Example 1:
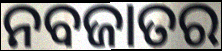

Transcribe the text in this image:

ନବଜାତର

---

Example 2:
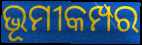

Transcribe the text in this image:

ଭୂମୀକମ୍ପର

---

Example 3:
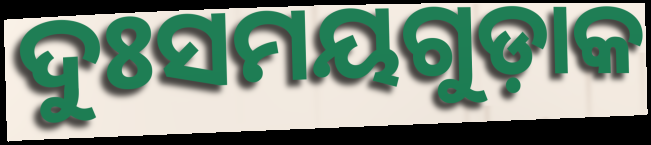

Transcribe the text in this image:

ଦୁଃସମୟଗୁଡ଼ାକ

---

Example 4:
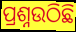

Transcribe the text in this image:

ପ୍ରଶ୍ନଉଠିଛି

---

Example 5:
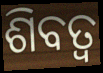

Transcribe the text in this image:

ଶିବତ୍ୱ